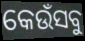
କେଉଁସବୁ